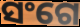
ସଂଗେ